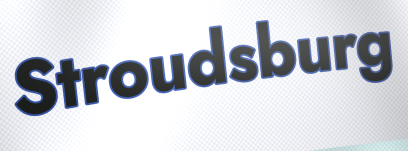
Stroudsburg